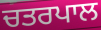
ਚਤਰਪਾਲ